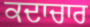
ਕਦਾਚਾਰ